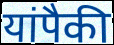
यांपैकी